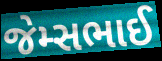
જેમ્સભાઈ